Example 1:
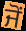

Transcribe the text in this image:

ਜੋਂ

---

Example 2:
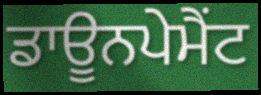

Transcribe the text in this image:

ਡਾਊਨਪੇਮੈਂਟ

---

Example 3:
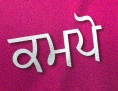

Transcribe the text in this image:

ਕਮਪੋ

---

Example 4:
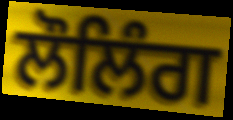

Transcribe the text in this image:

ਲੌਲਿੰਗ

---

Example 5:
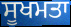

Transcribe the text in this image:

ਸੂਖਮਤਾ